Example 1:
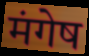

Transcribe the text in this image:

मंगेष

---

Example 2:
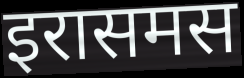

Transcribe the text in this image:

इरासमस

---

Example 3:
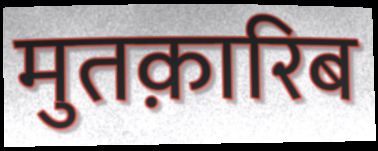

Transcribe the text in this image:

मुतक़ारिब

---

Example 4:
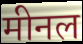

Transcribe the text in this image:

मीनल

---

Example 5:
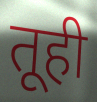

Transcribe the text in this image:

तूही